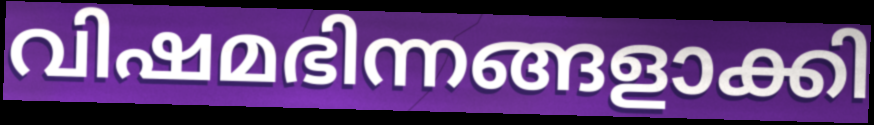
വിഷമഭിന്നങ്ങളാക്കി